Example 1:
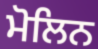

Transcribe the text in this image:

ਮੋਲਿਨ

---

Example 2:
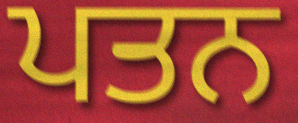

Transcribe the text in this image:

ਪਤਨ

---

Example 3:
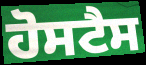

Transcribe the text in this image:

ਹੋਸਟੈਸ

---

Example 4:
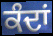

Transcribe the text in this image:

ਕੰਦਾਂ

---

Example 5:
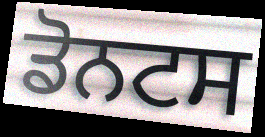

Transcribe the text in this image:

ਡੋਨਟਸ